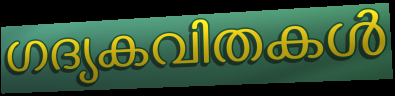
ഗദ്യകവിതകൾ